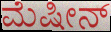
ಮೆಷೀನ್